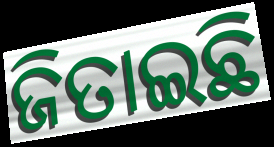
ଜିତାଇଛି